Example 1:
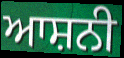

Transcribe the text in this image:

ਆਸ਼ਨੀ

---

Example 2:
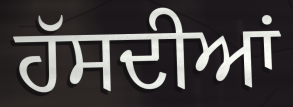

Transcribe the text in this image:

ਹੱਸਦੀਆਂ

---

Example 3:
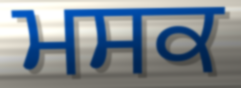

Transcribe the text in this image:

ਮਸਕ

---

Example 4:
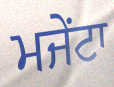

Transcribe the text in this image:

ਮਜੇਂਟਾ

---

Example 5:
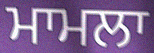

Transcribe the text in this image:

ਮਾਮਲਾ